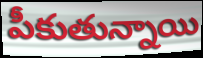
పీకుతున్నాయి